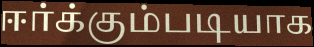
ஈர்க்கும்படியாக